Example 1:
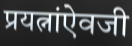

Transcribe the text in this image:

प्रयत्नांऐवजी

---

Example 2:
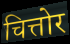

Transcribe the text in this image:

चित्तोर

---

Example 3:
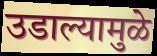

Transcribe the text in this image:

उडाल्यामुळे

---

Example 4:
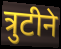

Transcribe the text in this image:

त्रुटीने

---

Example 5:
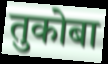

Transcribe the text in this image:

तुकोबा